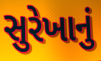
સુરેખાનું